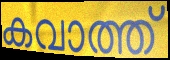
കവാത്ത്